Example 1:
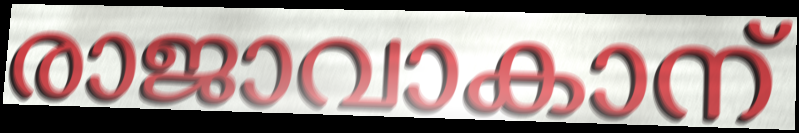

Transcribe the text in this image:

രാജാവാകാന്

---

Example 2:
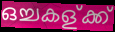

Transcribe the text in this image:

ഒച്ചകള്ക്ക്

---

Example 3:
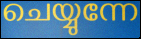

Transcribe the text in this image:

ചെയ്യുന്നേ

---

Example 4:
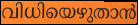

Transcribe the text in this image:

വിധിയെഴുതാൻ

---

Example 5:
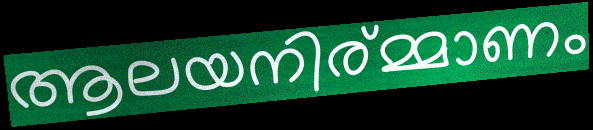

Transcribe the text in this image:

ആലയനിര്മ്മാണം